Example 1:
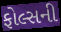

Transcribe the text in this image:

ફોલ્સની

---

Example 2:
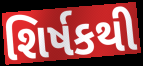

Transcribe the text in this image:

શિર્ષકથી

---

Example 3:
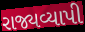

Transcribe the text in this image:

રાજ્યવ્યાપી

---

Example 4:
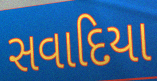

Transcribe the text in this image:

સવાદિયા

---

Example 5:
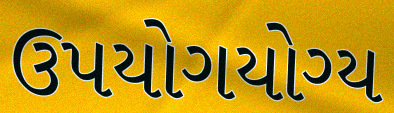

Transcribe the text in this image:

ઉપયોગયોગ્ય